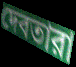
দেবতারা